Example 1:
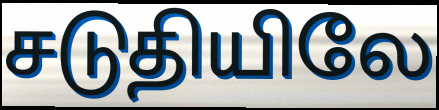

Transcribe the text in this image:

சடுதியிலே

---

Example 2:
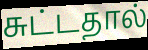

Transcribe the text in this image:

சுட்டதால்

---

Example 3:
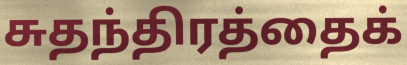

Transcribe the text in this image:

சுதந்திரத்தைக்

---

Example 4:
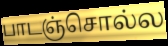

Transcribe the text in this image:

பாடஞ்சொல்ல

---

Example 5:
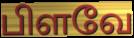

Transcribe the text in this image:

பிளவே